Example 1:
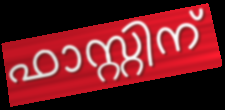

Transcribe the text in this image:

ഫാസ്റ്റിന്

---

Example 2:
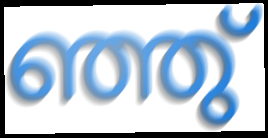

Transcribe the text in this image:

ഞ്ഞു്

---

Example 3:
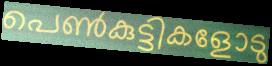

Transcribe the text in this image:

പെൺകുട്ടികളോടു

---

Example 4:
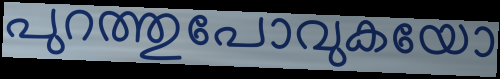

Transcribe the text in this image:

പുറത്തുപോവുകയോ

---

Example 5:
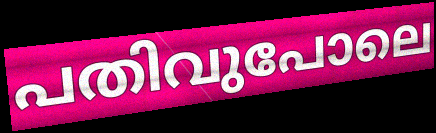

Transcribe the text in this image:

പതിവുപോലെ